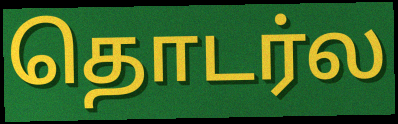
தொடர்ல